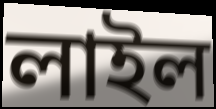
লাইল